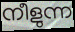
നീളുന്ന